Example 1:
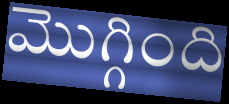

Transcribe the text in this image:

మొగ్గింది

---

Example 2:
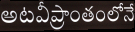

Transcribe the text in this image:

అటవీప్రాంతంలోనే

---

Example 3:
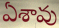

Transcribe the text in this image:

ఏశావు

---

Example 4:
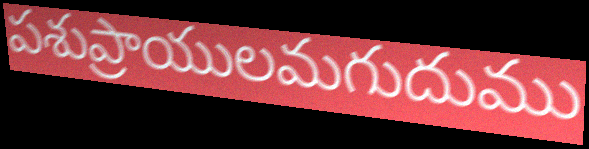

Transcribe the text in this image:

పశుప్రాయులమగుదుము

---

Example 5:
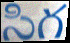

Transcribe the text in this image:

సిగ